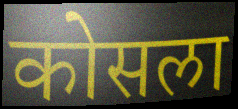
कोसला